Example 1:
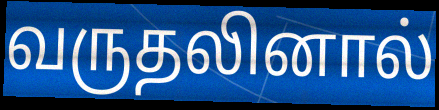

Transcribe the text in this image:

வருதலினால்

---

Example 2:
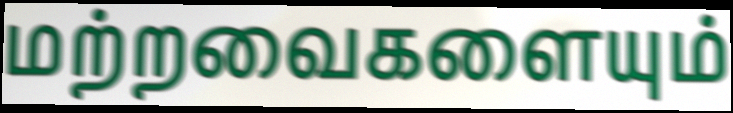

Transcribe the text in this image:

மற்றவைகளையும்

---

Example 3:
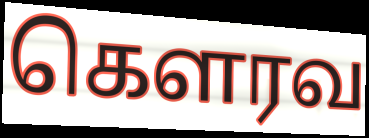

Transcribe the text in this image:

கெளரவ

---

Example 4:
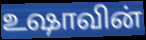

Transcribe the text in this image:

உஷாவின்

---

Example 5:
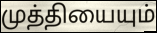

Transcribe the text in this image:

முத்தியையும்